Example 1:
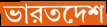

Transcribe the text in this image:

ভারতদেশ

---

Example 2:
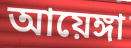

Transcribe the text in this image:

আয়েঙ্গা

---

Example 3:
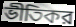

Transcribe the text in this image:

ভীতিকর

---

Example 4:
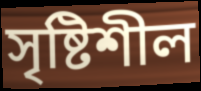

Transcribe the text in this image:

সৃষ্টিশীল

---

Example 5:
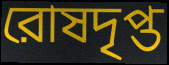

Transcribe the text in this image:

রোষদৃপ্ত